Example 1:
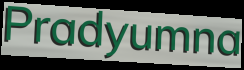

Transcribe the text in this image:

Pradyumna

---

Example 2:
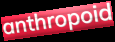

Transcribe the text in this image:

anthropoid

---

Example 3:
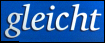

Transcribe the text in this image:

gleicht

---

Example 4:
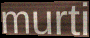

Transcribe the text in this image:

murti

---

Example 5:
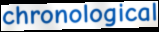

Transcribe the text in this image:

chronological